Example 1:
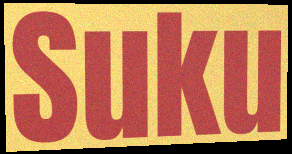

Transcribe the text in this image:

Suku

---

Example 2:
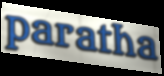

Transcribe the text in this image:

paratha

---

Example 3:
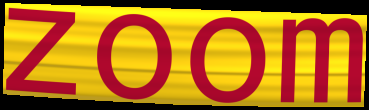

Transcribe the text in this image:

zoom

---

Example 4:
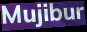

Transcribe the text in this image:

Mujibur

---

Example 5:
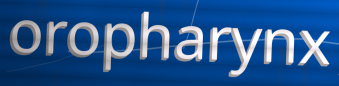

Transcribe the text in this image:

oropharynx